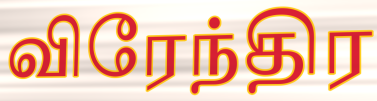
விரேந்திர